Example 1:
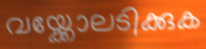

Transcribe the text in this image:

വയ്ക്കോലടിക്കുക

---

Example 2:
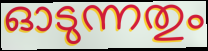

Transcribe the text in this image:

ഓടുന്നതും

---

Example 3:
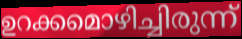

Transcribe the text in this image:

ഉറക്കമൊഴിച്ചിരുന്ന്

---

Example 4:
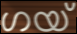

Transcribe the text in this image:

ഗയ്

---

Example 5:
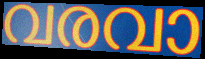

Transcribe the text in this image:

വരവാ